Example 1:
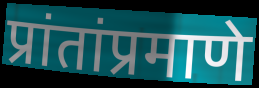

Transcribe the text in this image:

प्रांतांप्रमाणे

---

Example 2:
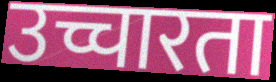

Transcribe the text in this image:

उच्चारता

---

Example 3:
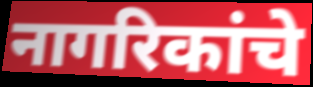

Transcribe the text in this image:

नागरिकांचे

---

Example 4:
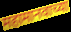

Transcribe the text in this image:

महामानवाच्या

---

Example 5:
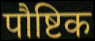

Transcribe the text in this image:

पौष्टिक